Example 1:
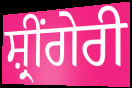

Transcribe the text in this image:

ਸ਼੍ਰੀਂਗੇਰੀ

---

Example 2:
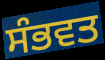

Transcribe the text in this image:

ਸੰਭਵਤ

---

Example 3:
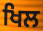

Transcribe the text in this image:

ਖਿਲ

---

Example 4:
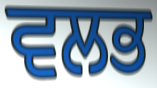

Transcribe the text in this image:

ਵਲਭ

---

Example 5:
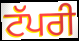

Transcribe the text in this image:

ਟੱਪਰੀ